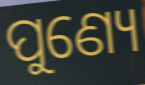
ପୁଣ୍ୟେ